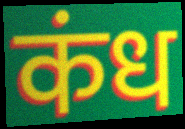
कंध